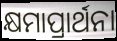
କ୍ଷମାପ୍ରାର୍ଥନା